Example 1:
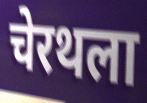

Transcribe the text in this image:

चेरथला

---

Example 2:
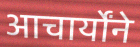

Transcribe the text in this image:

आचार्योंने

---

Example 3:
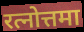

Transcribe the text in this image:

रत्नोत्तमा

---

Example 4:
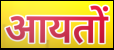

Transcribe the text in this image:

आयतों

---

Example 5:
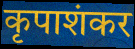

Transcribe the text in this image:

कृपाशंकर